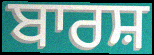
ਬਾਰਸ਼